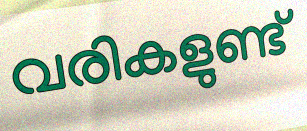
വരികളുണ്ട്